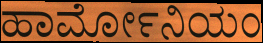
ಹಾರ್ಮೋನಿಯಂ